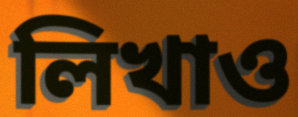
লিখাও